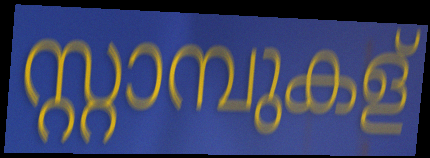
സ്റ്റാമ്പുകള്